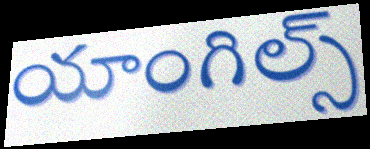
యాంగిల్స్